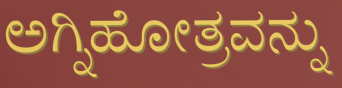
ಅಗ್ನಿಹೋತ್ರವನ್ನು